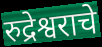
रुद्रेश्वराचे